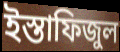
ইস্তাফিজুল